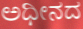
ಅಧೀನದ